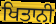
ਖਿਤਾਨੀ